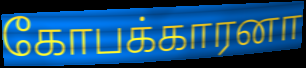
கோபக்காரனா